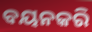
ବୟନକରି